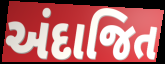
અંદાજિત